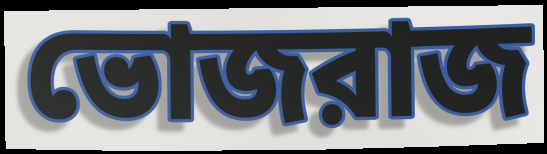
ভোজরাজ